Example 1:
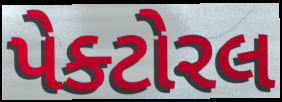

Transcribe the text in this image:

પેક્ટોરલ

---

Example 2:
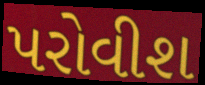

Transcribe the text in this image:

પરોવીશ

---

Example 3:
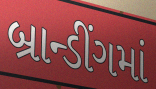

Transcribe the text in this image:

બ્રાન્ડીંગમાં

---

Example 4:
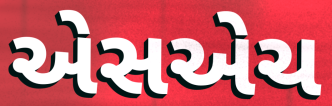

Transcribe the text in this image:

એસએચ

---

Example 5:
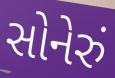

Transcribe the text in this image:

સોનેરું